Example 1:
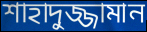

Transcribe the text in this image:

শাহাদুজ্জামান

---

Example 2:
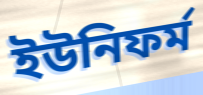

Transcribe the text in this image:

ইউনিফর্ম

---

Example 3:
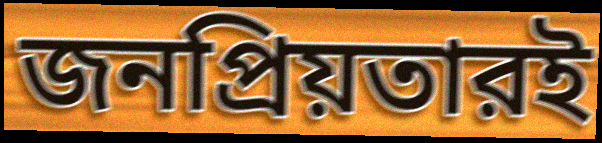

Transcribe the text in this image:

জনপ্রিয়তারই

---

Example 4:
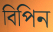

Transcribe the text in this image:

বিপিন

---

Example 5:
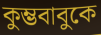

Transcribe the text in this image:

কুম্ভবাবুকে